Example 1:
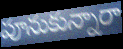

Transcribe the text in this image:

పూనుకున్నారా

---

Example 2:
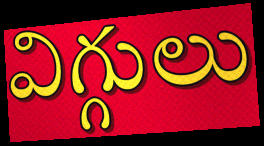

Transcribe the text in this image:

విగ్గులు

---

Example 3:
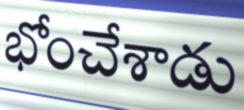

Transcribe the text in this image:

భోంచేశాడు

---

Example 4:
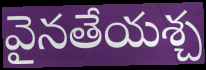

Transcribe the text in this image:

వైనతేయశ్చ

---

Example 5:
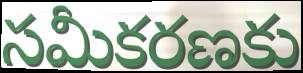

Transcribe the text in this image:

సమీకరణకు